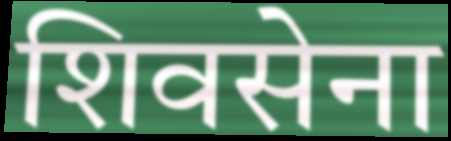
शिवसेना